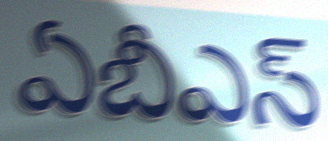
ఏబీఎస్